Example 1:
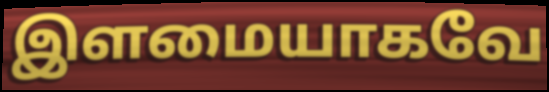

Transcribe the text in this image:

இளமையாகவே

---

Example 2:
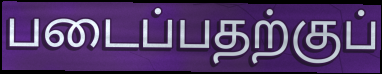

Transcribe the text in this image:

படைப்பதற்குப்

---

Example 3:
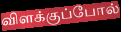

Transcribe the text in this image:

விளக்குப்போல்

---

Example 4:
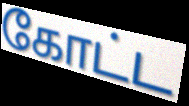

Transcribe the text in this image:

கோட்ட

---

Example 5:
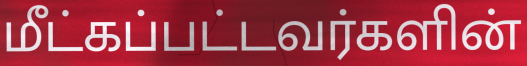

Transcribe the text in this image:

மீட்கப்பட்டவர்களின்